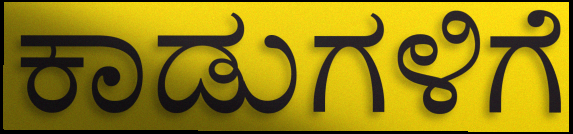
ಕಾಡುಗಳಿಗೆ